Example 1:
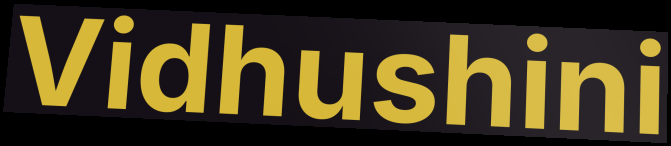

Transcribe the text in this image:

Vidhushini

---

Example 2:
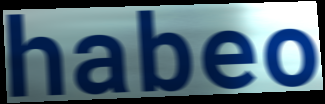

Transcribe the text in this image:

habeo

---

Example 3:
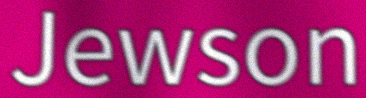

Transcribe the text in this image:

Jewson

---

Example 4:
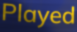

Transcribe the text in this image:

Played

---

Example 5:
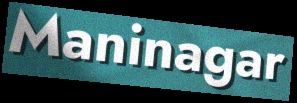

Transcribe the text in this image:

Maninagar